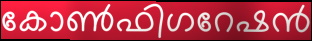
കോൺഫിഗറേഷൻ